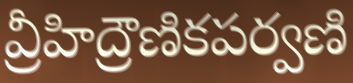
వ్రీహిద్రౌణికపర్వణి